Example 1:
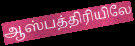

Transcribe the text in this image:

ஆஸ்பத்திரியிலே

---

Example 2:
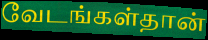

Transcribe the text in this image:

வேடங்கள்தான்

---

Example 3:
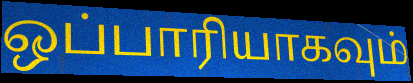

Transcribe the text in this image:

ஒப்பாரியாகவும்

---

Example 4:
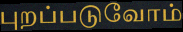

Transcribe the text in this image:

புறப்படுவோம்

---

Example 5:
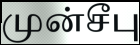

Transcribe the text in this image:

முன்சீபு